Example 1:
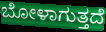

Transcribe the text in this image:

ಬೋಳಾಗುತ್ತದೆ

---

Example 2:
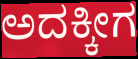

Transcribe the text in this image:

ಅದಕ್ಕೀಗ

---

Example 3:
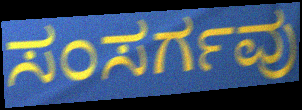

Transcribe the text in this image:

ಸಂಸರ್ಗವು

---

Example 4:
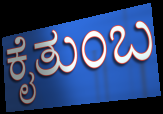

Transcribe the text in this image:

ಕೈತುಂಬ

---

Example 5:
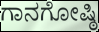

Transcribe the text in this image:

ಗಾನಗೋಷ್ಠಿ